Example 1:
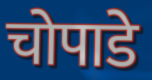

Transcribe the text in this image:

चोपाडे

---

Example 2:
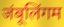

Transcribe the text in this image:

जंबूलिंगम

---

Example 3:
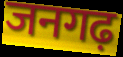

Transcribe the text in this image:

जनगढ़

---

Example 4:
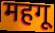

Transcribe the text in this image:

महगू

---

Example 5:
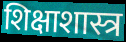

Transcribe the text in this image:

शिक्षाशास्त्र